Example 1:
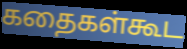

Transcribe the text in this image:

கதைகள்கூட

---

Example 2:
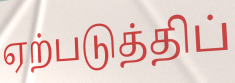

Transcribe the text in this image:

ஏற்படுத்திப்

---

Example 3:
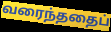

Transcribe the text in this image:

வரைந்ததைப்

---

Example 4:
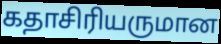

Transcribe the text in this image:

கதாசிரியருமான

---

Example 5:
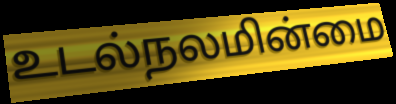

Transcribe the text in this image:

உடல்நலமின்மை